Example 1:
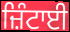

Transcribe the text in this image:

ਜ਼ਿੰਟਾਈ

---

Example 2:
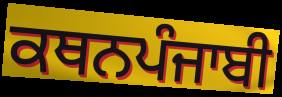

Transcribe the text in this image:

ਕਥਨਪੰਜਾਬੀ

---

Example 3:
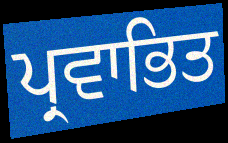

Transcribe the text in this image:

ਪ੍ਰਵਾਭਿਤ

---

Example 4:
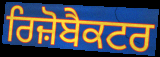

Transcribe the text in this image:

ਰਿਜ਼ੋਬੈਕਟਰ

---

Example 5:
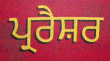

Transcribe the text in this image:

ਪ੍ਰਰੈਸ਼ਰ